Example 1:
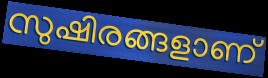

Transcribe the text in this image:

സുഷിരങ്ങളാണ്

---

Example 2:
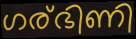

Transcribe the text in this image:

ഗര്ഭിണി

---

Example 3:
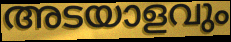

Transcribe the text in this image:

അടയാളവും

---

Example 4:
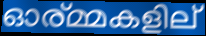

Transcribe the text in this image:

ഓര്മ്മകളില്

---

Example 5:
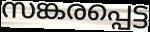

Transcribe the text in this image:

സങ്കരപ്പെട്ട